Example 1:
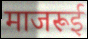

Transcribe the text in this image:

माजरूई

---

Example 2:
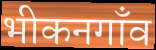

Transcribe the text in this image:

भीकनगाँव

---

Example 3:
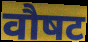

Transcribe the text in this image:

वौषट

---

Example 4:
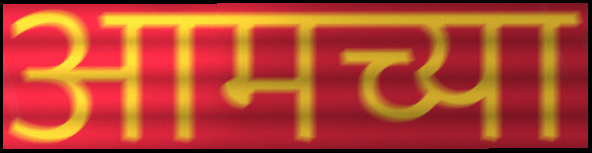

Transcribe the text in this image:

आमच्या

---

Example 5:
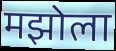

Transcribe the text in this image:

मझोला